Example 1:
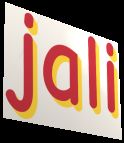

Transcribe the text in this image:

jali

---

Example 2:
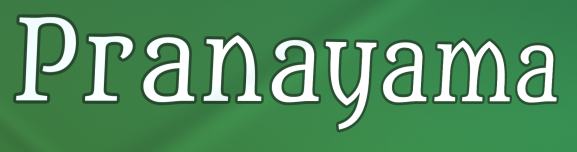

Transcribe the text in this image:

Pranayama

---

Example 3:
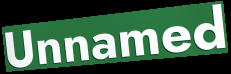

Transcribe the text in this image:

Unnamed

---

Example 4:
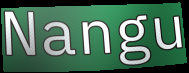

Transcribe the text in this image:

Nangu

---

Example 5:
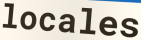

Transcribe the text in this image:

locales